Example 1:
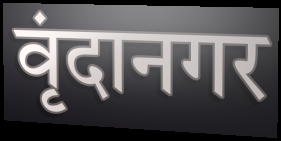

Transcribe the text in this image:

वृंदानगर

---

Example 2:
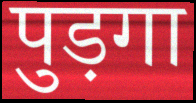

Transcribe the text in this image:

पुड़गा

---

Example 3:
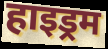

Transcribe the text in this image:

हाइड्रम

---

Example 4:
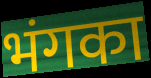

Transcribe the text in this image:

भंगका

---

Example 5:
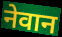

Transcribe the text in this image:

नेवान